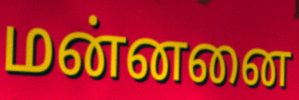
மன்னனை